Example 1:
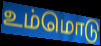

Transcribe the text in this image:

உம்மொடு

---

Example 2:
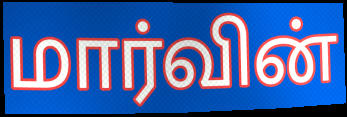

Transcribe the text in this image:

மார்வின்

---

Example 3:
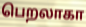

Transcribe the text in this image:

பெறலாகா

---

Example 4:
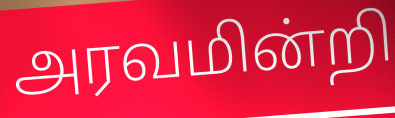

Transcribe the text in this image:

அரவமின்றி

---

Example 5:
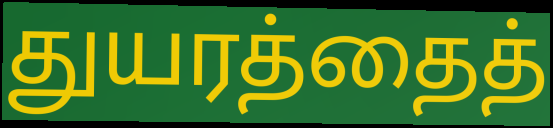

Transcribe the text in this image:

துயரத்தைத்